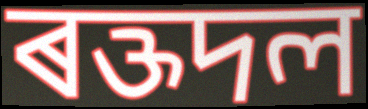
ৰক্তদল